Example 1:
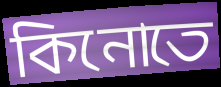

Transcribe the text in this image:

কিনোতে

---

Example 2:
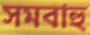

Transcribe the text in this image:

সমবাহু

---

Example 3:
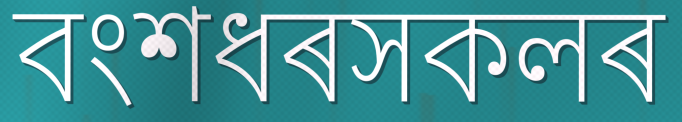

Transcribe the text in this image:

বংশধৰসকলৰ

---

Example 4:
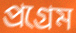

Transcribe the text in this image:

প্ৰগ্ৰেম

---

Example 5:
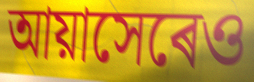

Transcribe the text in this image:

আয়াসেৰেও